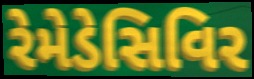
રેમેડેસિવિર